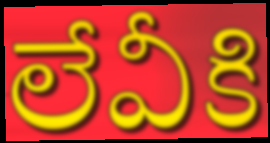
లేవీకి